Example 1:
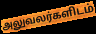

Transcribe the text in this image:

அலுவலர்களிடம்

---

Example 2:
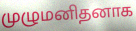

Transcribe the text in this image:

முழுமனிதனாக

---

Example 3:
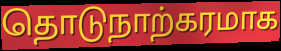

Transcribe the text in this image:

தொடுநாற்கரமாக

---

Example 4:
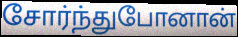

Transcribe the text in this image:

சோர்ந்துபோனான்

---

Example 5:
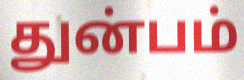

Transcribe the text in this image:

துன்பம்